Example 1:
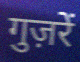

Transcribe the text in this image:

गुज़रें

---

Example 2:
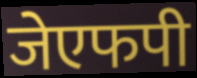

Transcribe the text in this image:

जेएफपी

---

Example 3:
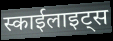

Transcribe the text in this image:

स्काईलाइट्स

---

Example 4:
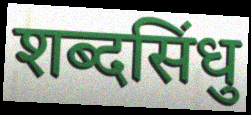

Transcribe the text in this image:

शब्दसिंधु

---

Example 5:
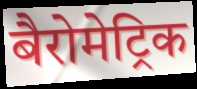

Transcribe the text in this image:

बैरोमेट्रिक